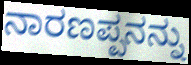
ನಾರಣಪ್ಪನನ್ನು